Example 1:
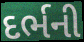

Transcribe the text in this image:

દર્ભની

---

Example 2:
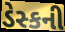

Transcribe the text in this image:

ડેસ્કની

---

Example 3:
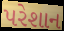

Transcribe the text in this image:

પરેશાન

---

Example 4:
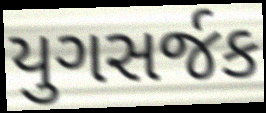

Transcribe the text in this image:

યુગસર્જક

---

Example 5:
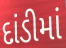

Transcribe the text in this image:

દાંડીમાં